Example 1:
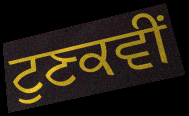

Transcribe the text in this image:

ਟੁਣਕਵੀਂ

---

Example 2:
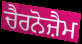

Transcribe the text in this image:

ਚੈਰਨੋਜ਼ੈਮ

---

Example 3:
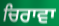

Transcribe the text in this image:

ਚਿਰਾਵਾ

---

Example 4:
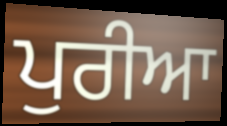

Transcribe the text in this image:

ਪੁਰੀਆ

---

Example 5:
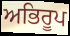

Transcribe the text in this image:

ਅਭਿਰੂਪ